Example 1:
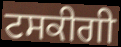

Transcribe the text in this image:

ਟਸਕੀਗੀ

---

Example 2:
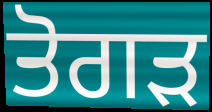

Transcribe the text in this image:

ਤੋਗੜ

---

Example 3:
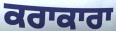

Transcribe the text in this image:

ਕਰਾਕਾਰਾ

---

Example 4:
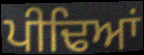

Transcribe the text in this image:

ਪੀਢਿਆਂ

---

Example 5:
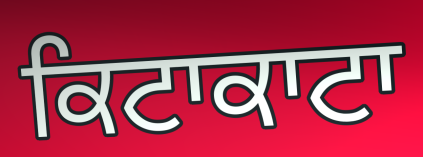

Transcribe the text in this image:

ਕਿਟਾਕਾਟਾ